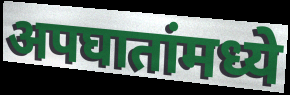
अपघातांमध्ये